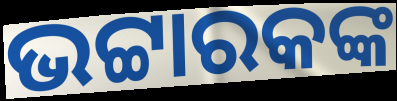
ଭଟ୍ଟାରକଙ୍କ